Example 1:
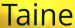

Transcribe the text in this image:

Taine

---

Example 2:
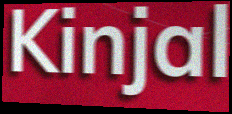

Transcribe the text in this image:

Kinjal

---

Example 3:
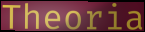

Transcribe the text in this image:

Theoria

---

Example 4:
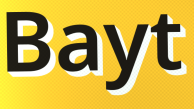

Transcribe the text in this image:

Bayt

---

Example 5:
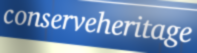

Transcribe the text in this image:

conserveheritage